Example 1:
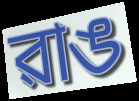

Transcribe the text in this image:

ৱাঙ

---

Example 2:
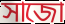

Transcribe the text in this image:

সাজো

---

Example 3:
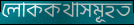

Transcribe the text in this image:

লোককথাসমূহত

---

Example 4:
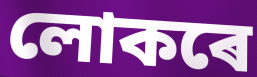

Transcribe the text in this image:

লোকৰে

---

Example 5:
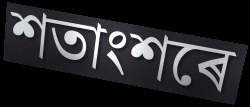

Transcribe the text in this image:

শতাংশৰে